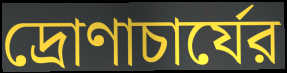
দ্রোণাচার্যের